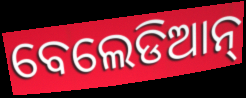
ବେଲେଡିଆନ୍